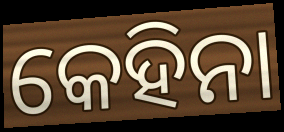
କେହିନା